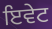
ਇਵੇਟ